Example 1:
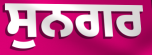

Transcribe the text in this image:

ਸੁਨਗਰ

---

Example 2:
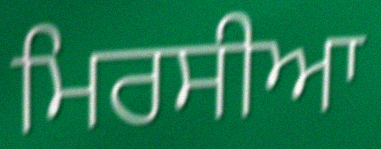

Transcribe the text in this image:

ਮਿਰਸੀਆ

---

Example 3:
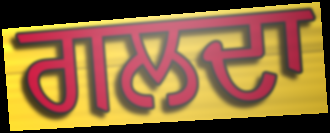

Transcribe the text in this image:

ਗਲਦਾ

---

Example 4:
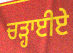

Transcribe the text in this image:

ਚੜ੍ਹਾਈਏ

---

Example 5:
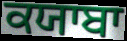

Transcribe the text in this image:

ਕਯਾਬਾ